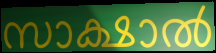
സാക്ഷാൽ